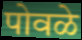
पोवळे